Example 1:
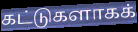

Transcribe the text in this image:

கட்டுகளாகக்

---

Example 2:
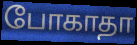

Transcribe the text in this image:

போகாதா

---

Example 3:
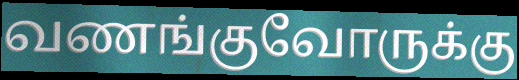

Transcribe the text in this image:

வணங்குவோருக்கு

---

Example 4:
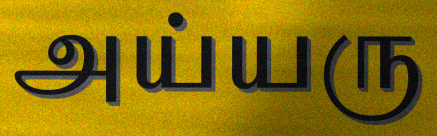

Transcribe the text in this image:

அய்யரு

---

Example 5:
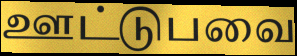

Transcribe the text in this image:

ஊட்டுபவை